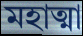
মহাত্মা